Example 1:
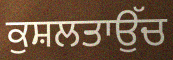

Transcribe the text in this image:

ਕੁਸ਼ਲਤਾਉੱਚ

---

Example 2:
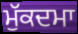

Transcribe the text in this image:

ਮੁੱਕਦਮਾ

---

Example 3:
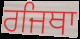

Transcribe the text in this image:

ਰਜਿਥਾ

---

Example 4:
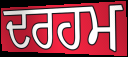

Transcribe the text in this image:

ਦਰਹਮ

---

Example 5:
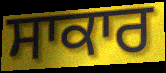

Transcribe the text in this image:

ਸਾਕਾਰ